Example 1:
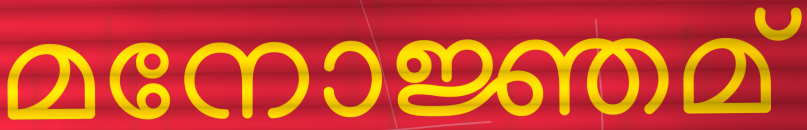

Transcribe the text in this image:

മനോജ്ഞമ്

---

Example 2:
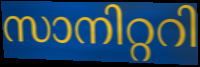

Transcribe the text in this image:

സാനിറ്ററി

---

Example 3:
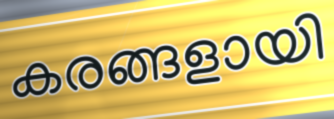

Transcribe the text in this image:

കരങ്ങളായി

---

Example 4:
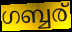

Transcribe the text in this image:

ഗബ്ബര്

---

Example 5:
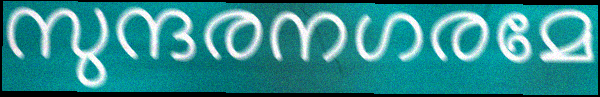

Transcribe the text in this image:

സുന്ദരനഗരമേ